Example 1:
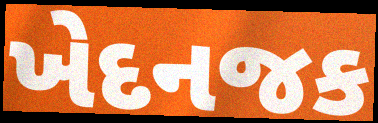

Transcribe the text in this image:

ખેદનજક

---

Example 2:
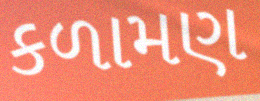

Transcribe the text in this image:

કળામણ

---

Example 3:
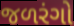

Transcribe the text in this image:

જળરંગો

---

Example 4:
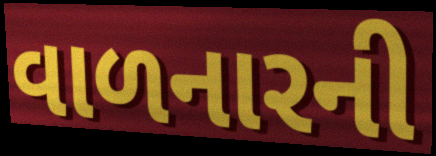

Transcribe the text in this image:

વાળનારની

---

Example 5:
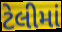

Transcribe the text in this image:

ટેલીમાં